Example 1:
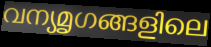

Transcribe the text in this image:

വന്യമൃഗങ്ങളിലെ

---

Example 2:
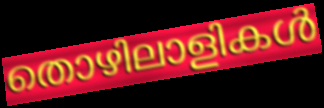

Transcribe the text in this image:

തൊഴിലാളികൾ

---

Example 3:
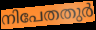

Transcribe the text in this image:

നിപേതതുർ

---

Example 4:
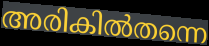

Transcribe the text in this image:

അരികിൽതന്നെ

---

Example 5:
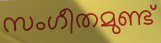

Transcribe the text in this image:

സംഗീതമുണ്ട്